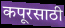
कपूरसाठी